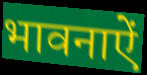
भावनाऐं